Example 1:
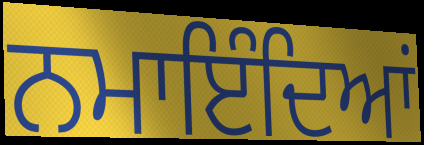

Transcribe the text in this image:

ਨਮਾਇੰਦਿਆਂ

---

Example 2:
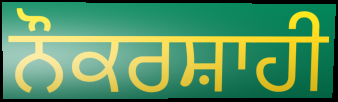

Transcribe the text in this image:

ਨੌਕਰਸ਼ਾਹੀ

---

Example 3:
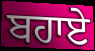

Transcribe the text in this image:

ਬਹਾਏ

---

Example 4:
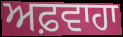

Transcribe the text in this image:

ਅਫ਼ਵਾਹਾ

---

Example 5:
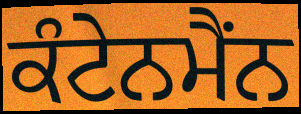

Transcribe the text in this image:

ਕੰਟੇਨਮੈਂਨ